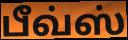
பீவ்ஸ்